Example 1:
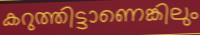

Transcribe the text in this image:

കറുത്തിട്ടാണെങ്കിലും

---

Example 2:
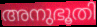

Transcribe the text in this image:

അനുഭൂതി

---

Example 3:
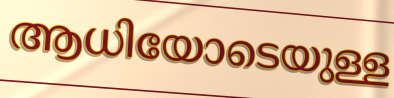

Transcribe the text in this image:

ആധിയോടെയുള്ള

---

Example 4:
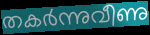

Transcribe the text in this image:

തകർന്നുവീണു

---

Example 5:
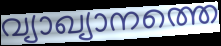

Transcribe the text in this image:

വ്യാഖ്യാനത്തെ